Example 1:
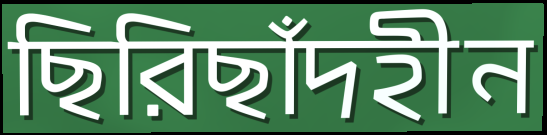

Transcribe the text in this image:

ছিরিছাঁদহীন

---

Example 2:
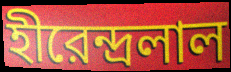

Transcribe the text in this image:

হীরেন্দ্রলাল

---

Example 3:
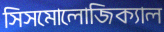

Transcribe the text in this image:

সিসমোলোজিক্যাল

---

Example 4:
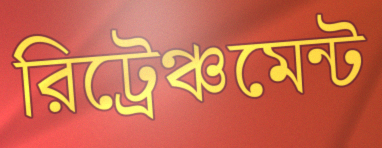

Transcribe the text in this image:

রিট্রেঞ্চমেন্ট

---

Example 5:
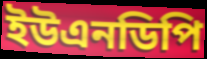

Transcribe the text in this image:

ইউএনডিপি